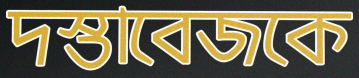
দস্তাবেজকে